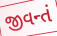
જીવન્તં